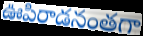
ఊపిరాడనంతగా